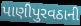
પાણીપુરવઠાની